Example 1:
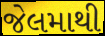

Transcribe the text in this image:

જેલમાથી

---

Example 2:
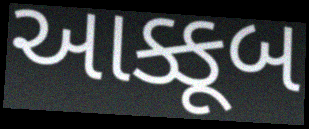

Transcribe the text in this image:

આક્કૂબ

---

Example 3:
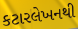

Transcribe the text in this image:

કટારલેખનથી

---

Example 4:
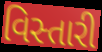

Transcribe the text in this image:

વિસ્તારી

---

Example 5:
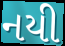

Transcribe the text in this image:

નયી